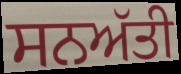
ਸਨਅੱਤੀ